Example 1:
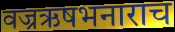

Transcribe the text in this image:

वज्रऋषभनाराच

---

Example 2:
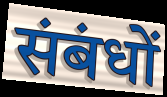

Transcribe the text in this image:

संबंधों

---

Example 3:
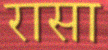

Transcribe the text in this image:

रासा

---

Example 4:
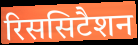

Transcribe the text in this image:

रिससिटैशन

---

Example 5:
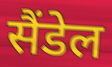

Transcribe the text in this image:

सैंडेल